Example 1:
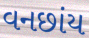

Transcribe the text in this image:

વનછાંય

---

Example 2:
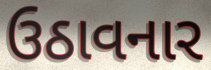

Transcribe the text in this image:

ઉઠાવનાર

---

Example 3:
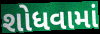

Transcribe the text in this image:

શોધવામાં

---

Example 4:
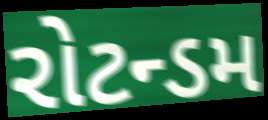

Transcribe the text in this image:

રોટન્ડમ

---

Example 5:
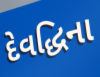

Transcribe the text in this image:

દેવદ્ધિના